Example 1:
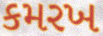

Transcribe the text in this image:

કમરખ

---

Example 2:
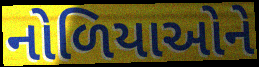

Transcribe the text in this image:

નોળિયાઓને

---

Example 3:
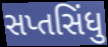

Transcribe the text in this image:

સપ્તસિંધુ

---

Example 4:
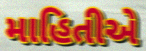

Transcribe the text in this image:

માહિતીએ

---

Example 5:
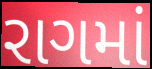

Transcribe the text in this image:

રાગમાં